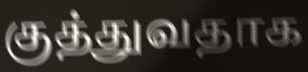
குத்துவதாக